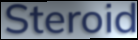
Steroid